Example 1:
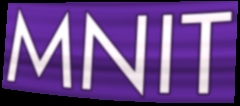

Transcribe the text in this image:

MNIT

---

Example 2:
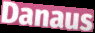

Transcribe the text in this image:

Danaus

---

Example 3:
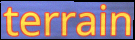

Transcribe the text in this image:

terrain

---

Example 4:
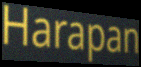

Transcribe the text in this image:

Harapan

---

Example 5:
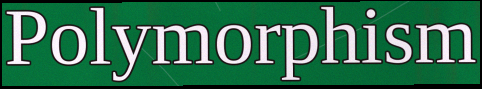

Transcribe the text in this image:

Polymorphism